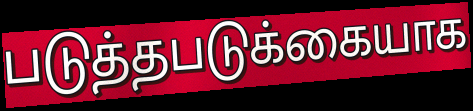
படுத்தபடுக்கையாக